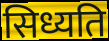
सिध्यति